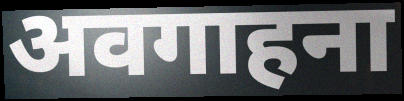
अवगाहना